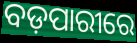
ବଡ଼ପାରୀରେ